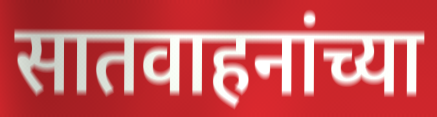
सातवाहनांच्या